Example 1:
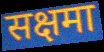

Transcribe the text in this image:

सक्षमा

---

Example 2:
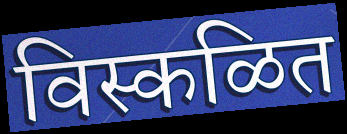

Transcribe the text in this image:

विस्कळित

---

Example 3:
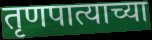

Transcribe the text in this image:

तृणपात्याच्या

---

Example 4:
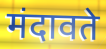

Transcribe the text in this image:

मंदावते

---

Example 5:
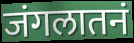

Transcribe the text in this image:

जंगलातनं